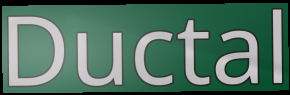
Ductal